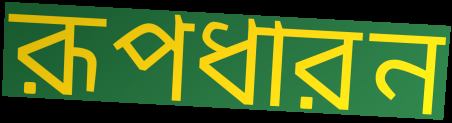
রূপধারন